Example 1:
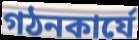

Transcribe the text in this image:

গঠনকার্যে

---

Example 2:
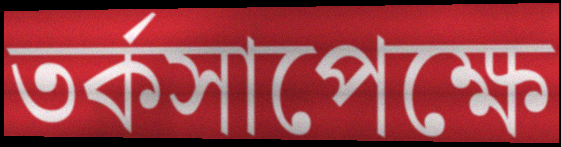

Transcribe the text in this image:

তর্কসাপেক্ষে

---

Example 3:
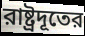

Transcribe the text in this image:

রাষ্ট্রদূতের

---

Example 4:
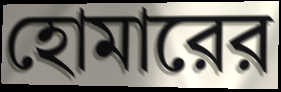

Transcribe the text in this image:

হোমারের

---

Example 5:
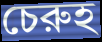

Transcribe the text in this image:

চেরুহ